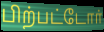
பிற்பட்டோர்